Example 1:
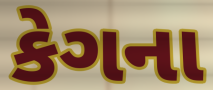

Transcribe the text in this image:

કેગના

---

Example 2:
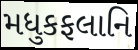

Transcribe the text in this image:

મધુકફલાનિ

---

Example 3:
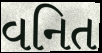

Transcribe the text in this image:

વનિત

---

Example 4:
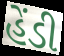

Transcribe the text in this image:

હેંડી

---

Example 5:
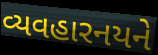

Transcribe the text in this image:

વ્યવહારનયને